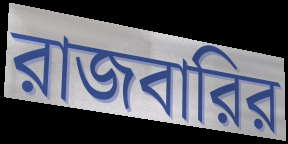
রাজবারির